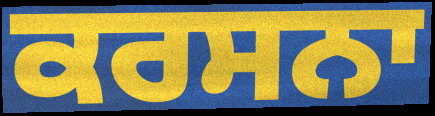
ਕਰਸਨਾ